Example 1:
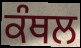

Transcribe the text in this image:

ਕੰਥਲ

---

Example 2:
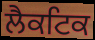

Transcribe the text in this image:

ਲੈਕਟਿਕ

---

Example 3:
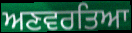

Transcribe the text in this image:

ਅਣਵਰਤਿਆ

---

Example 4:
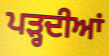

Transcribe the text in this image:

ਪੜ੍ਹਦੀਆਂ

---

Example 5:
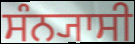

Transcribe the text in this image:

ਸੰਨ੍ਯਾਸੀ